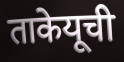
ताकेयूची